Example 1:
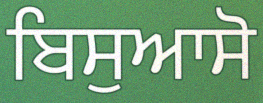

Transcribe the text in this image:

ਬਿਸੁਆਸੋ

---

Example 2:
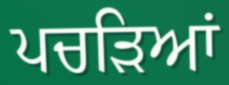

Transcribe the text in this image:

ਪਚੜਿਆਂ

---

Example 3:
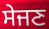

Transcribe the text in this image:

ਸੇਜਣ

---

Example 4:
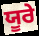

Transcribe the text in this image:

ਯੂਰੇ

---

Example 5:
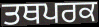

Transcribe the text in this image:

ਤਥਪਰਕ